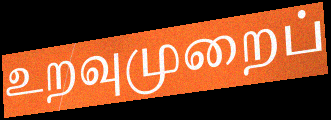
உறவுமுறைப்